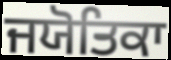
ਜਯੋਤਿਕਾ